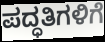
ಪದ್ಧತಿಗಳಿಗೆ